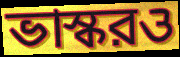
ভাস্করও